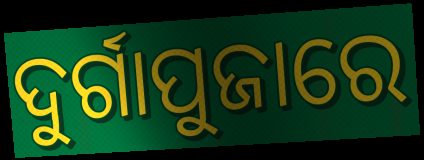
ଦୁର୍ଗାପୁଜାରେ